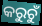
କରୁଚୁଁ